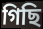
গিছি